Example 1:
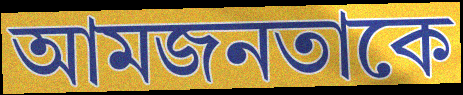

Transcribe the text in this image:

আমজনতাকে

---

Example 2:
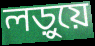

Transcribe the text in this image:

লড়ুয়ে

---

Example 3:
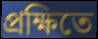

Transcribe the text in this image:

প্রক্ষিতে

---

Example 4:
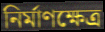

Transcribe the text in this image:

নির্মাণক্ষেত্র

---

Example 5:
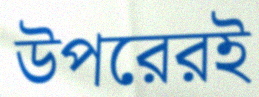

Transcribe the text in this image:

উপরেরই